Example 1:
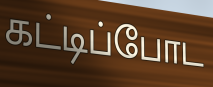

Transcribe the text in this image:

கட்டிப்போட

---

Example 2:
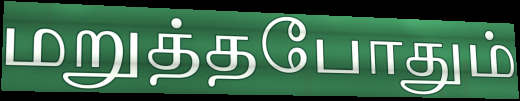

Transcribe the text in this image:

மறுத்தபோதும்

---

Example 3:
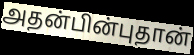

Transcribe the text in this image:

அதன்பின்புதான்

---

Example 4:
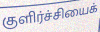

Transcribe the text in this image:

குளிர்ச்சியைக்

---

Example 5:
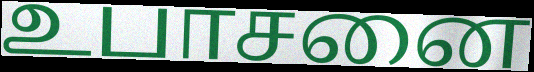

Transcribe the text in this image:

உபாசனை